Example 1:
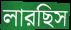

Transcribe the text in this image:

লারছিস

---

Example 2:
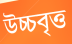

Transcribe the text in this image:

উচ্চবৃত্ত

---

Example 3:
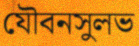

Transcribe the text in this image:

যৌবনসুলভ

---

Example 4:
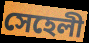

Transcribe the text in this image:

সেহেলী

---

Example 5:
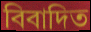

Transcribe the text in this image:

বিবাদিত